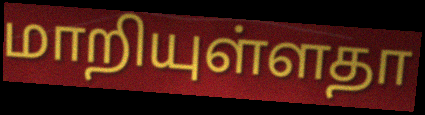
மாறியுள்ளதா